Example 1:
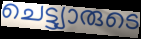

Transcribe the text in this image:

ചെട്ട്യാരുടെ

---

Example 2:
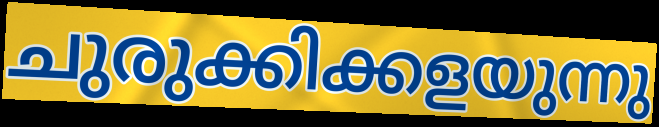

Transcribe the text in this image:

ചുരുക്കിക്കളയുന്നു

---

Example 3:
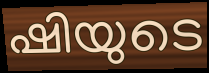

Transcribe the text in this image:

ഷിയുടെ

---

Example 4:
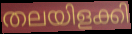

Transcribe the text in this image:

തലയിളക്കി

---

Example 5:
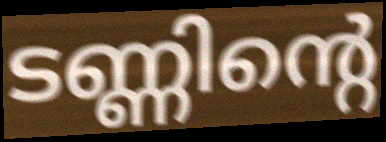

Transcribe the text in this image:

ടണ്ണിന്റെ